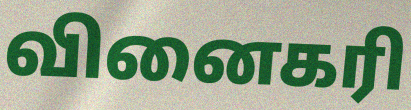
வினைகரி